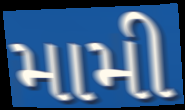
મામી